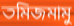
তমিজমামু